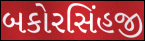
બકોરસિંહજી